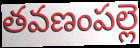
తవణంపల్లె